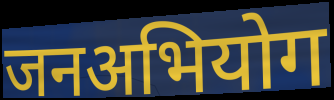
जनअभियोग